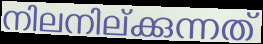
നിലനില്ക്കുന്നത്